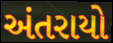
અંતરાયો